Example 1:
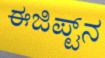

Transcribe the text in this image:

ಈಜಿಪ್ಟ್‌ನ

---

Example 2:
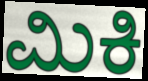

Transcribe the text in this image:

ಮಿಕಿ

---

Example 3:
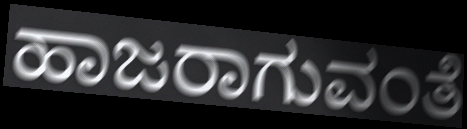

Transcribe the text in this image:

ಹಾಜರಾಗುವಂತೆ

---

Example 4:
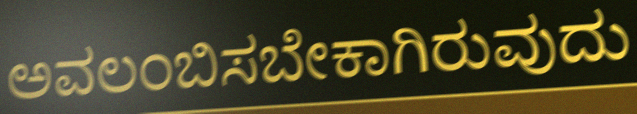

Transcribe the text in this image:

ಅವಲಂಬಿಸಬೇಕಾಗಿರುವುದು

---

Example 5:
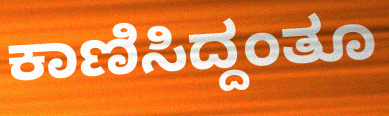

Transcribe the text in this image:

ಕಾಣಿಸಿದ್ದಂತೂ